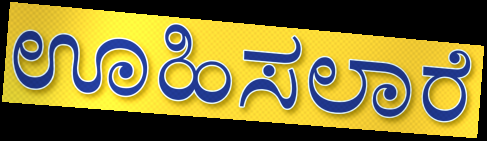
ಊಹಿಸಲಾರೆ